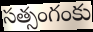
సత్సంగంకు